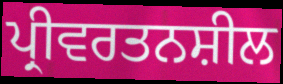
ਪ੍ਰੀਵਰਤਨਸ਼ੀਲ